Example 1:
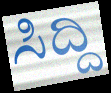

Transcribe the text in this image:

ಸಿದ್ದಿ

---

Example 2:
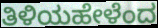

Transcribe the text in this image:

ತಿಳಿಯಹೇಳೆಂದ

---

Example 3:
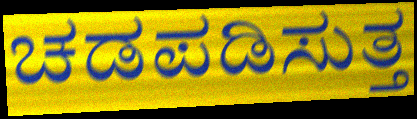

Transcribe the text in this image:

ಚಡಪಡಿಸುತ್ತ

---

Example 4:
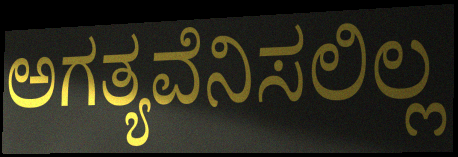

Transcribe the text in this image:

ಅಗತ್ಯವೆನಿಸಲಿಲ್ಲ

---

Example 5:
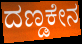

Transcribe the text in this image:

ದಣ್ಡಕೇನ